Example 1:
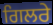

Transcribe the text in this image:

ਗਿਲਰੇ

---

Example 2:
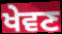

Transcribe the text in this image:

ਖੇਵਣ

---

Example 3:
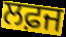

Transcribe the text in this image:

ਲਫ਼ਜ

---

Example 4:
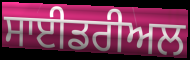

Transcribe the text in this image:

ਸਾਈਡਰੀਅਲ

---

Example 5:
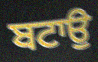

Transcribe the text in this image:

ਬਟਾਉ